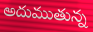
అదుముతున్న